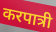
करपात्री